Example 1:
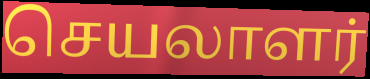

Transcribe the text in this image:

செயலாளர்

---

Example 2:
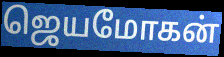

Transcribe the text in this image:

ஜெயமோகன்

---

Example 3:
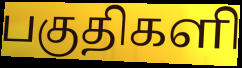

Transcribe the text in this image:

பகுதிகளி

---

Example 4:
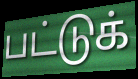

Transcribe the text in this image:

பட்டுக்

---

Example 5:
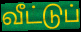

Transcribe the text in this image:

வீட்டுப்